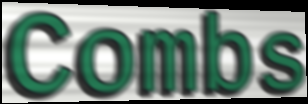
Combs